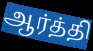
ஆர்த்தி